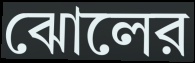
ঝোলের